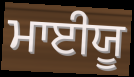
ਮਾਈਯੂ